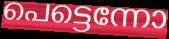
പെട്ടെന്നോ